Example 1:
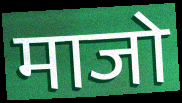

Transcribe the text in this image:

माजो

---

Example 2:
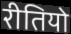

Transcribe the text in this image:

रीतियो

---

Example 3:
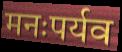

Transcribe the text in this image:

मनःपर्यव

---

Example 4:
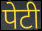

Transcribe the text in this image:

पेटी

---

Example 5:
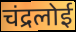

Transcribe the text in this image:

चंद्रलोई